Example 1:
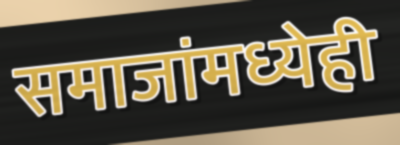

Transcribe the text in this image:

समाजांमध्येही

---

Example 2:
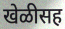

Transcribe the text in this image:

खेळीसह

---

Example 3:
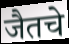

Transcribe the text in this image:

जैतचे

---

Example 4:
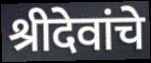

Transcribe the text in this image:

श्रीदेवांचे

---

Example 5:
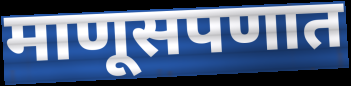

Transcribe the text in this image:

माणूसपणात